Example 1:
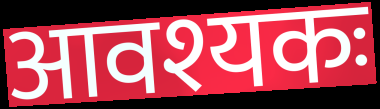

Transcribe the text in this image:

आवश्यकः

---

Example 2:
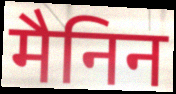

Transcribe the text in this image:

मैनिन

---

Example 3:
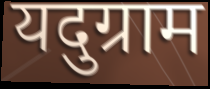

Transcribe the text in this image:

यदुग्राम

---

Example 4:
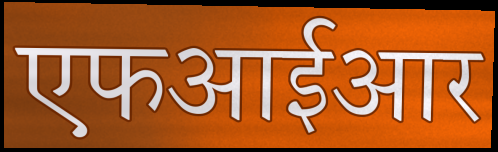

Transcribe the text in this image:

एफआईआर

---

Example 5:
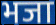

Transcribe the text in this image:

भजा